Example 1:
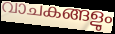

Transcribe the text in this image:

വാചകങ്ങളും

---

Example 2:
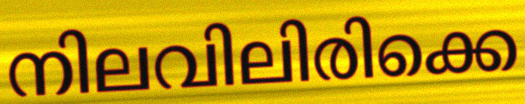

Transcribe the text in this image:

നിലവിലിരിക്കെ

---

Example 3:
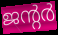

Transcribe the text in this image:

ജന്റർ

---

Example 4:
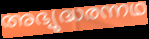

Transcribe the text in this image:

അഭ്യുദ്ധരന്നഥ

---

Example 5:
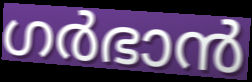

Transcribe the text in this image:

ഗർഭാൻ